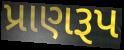
પ્રાણરૂપ